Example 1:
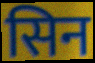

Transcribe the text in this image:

सिन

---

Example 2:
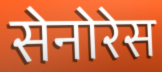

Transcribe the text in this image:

सेनोरेस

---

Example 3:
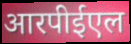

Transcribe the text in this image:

आरपीईएल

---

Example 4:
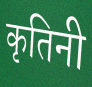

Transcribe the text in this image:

कृतिनी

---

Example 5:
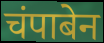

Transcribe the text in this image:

चंपाबेन